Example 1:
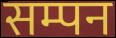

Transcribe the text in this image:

सम्पन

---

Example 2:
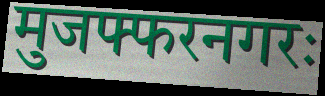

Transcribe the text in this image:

मुजफ्फरनगरः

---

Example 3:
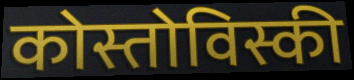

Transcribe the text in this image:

कोस्तोविस्की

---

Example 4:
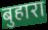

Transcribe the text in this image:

बुहारा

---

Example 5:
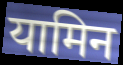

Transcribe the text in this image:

यामिन